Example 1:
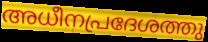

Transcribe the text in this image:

അധീനപ്രദേശത്തു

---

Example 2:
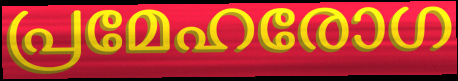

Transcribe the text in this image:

പ്രമേഹരോഗ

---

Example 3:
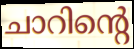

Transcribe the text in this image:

ചാറിന്റെ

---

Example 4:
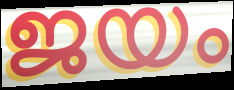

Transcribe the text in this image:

ജയം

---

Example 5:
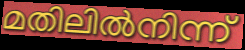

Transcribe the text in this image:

മതിലിൽനിന്ന്